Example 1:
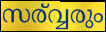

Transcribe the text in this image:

സര്വ്വരും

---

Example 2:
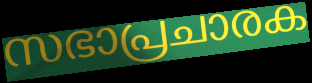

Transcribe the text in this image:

സഭാപ്രചാരക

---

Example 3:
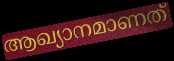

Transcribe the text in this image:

ആഖ്യാനമാണത്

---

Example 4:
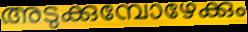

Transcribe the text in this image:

അടുക്കുമ്പോഴേക്കും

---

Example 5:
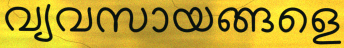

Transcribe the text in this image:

വ്യവസായങ്ങളെ